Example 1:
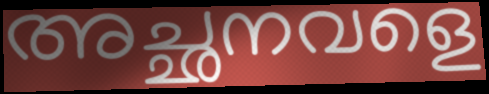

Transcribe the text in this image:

അച്ഛനവളെ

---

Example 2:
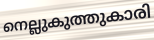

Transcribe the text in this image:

നെല്ലുകുത്തുകാരി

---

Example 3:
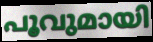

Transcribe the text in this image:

പൂവുമായി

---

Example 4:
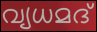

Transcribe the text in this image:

വ്യധമദ്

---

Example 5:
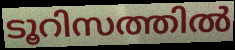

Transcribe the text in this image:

ടൂറിസത്തിൽ